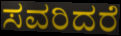
ಸವರಿದರೆ